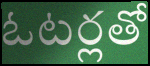
ఓటర్లతో